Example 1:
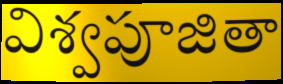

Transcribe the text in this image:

విశ్వపూజితా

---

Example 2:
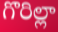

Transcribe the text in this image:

గొరిల్లా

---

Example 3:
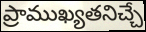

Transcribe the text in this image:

ప్రాముఖ్యతనిచ్చే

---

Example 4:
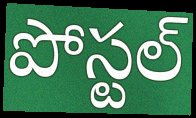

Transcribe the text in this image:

పోస్టల్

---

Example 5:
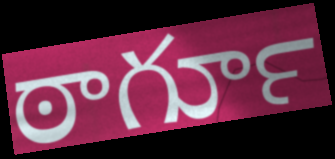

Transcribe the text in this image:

ఠాగూర్‍